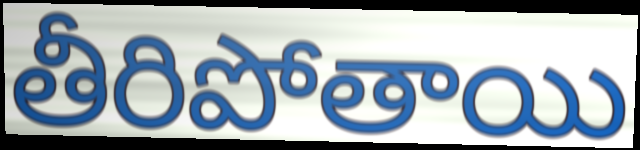
తీరిపోతాయి